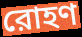
রোহণ